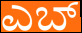
ಎಬ್